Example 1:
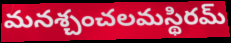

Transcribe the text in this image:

మనశ్చంచలమస్థిరమ్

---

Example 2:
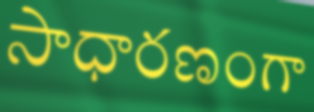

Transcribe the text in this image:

సాధారణంగా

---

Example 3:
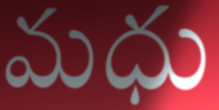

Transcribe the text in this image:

మధు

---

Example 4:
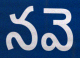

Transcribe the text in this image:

నవె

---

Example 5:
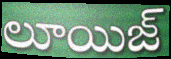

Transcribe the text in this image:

లూయిజ్